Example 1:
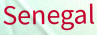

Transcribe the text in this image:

Senegal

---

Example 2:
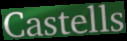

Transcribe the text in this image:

Castells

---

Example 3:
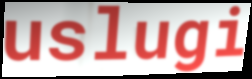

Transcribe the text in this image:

uslugi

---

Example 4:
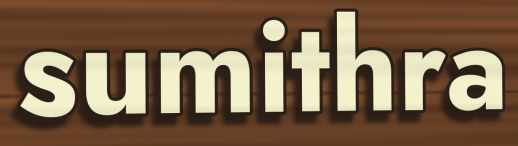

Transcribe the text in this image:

sumithra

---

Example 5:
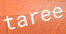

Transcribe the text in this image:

taree